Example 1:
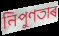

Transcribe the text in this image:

নিপুণতাৰ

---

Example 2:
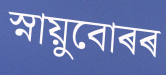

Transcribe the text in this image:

স্নায়ুবোৰৰ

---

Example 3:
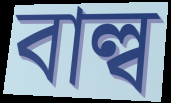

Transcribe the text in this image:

বাল্ব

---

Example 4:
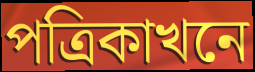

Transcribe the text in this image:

পত্ৰিকাখনে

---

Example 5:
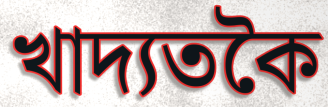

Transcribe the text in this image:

খাদ্যতকৈ